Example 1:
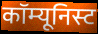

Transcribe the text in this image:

कॉम्यूनिस्ट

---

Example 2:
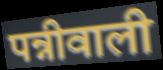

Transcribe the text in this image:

पन्नीवाली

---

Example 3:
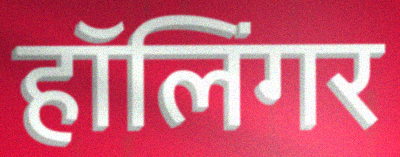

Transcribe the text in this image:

हॉलिंगर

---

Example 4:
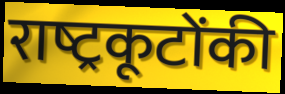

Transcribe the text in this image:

राष्ट्रकूटोंकी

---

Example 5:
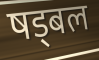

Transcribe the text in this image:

षड्बल